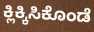
ಕ್ಲಿಕ್ಕಿಸಿಕೊಂಡೆ